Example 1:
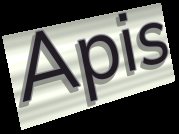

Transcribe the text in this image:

Apis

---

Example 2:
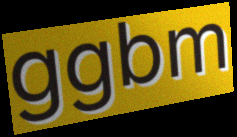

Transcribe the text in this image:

ggbm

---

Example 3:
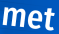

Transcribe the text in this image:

met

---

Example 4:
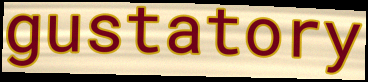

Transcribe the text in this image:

gustatory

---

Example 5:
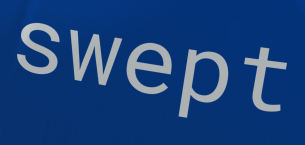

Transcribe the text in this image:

swept